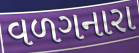
વળગનારા